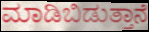
ಮಾಡಿಬಿಡುತ್ತಾನೆ